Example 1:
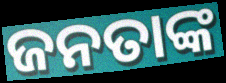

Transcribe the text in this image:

ଜନତାଙ୍କ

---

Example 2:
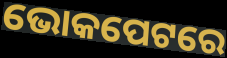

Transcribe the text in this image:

ଭୋକପେଟରେ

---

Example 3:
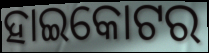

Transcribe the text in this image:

ହାଇକୋଟର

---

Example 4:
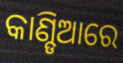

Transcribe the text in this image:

କାଣ୍ଡିଆରେ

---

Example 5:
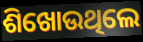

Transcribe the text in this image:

ଶିଖୋଉଥିଲେ